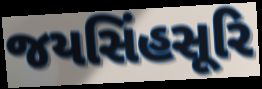
જયસિંહસૂરિ